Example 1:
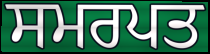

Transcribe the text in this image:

ਸਮਰਪਤ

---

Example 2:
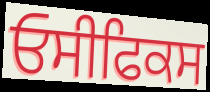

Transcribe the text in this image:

ਓਸੀਫਿਕਸ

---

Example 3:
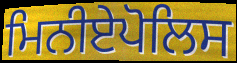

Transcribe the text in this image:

ਮਿਨੀਏਪੋਲਿਸ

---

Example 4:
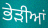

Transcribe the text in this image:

ਭੇੜੀਆਂ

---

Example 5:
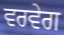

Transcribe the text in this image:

ਵਰਵੇਗ